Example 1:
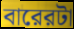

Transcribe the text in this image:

বারেরটা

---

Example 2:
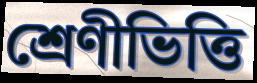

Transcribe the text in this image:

শ্রেণীভিত্তি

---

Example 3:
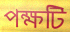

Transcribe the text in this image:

পক্ষটি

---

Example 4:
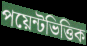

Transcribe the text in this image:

পয়েন্টভিত্তিক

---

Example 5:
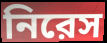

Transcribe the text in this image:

নিরেস